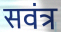
सवंत्र